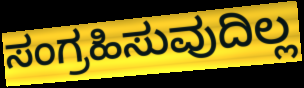
ಸಂಗ್ರಹಿಸುವುದಿಲ್ಲ